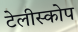
टेलीस्‍कोप